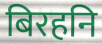
बिरहनि